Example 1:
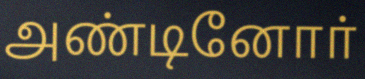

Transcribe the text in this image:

அண்டினோர்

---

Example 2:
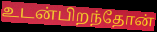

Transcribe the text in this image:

உடன்பிறந்தோன்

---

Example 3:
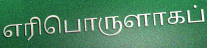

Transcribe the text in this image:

எரிபொருளாகப்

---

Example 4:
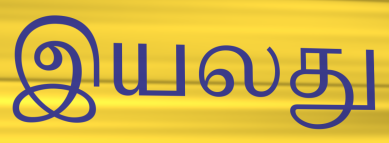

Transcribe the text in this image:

இயலது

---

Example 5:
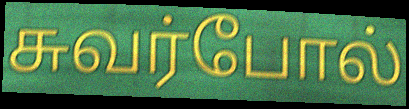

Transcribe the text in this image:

சுவர்போல்